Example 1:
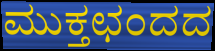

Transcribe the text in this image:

ಮುಕ್ತಛಂದದ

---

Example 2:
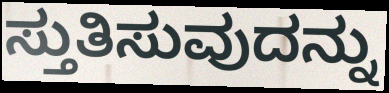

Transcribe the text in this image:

ಸ್ತುತಿಸುವುದನ್ನು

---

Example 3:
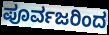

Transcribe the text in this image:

ಪೂರ್ವಜರಿಂದ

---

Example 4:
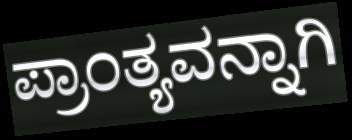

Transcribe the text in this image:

ಪ್ರಾಂತ್ಯವನ್ನಾಗಿ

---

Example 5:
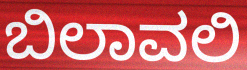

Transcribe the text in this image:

ಬಿಲಾವಲಿ